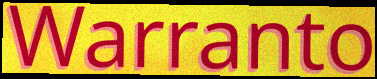
Warranto